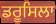
ਡਰੂਸਿਲਾ